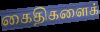
கைதிகளைக்